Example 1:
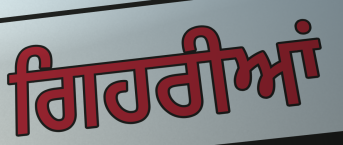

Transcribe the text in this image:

ਗਿਹਰੀਆਂ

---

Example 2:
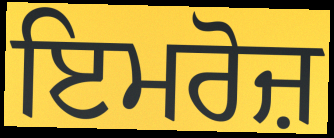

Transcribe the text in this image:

ਇਮਰੋਜ਼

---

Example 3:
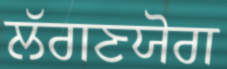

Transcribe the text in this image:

ਲੱਗਣਯੋਗ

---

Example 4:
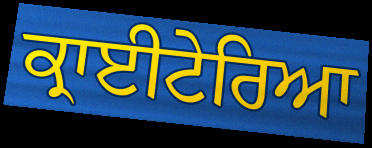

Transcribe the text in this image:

ਕ੍ਰਾਈਟੇਰਿਆ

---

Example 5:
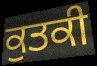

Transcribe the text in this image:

ਕੁਤਕੀ